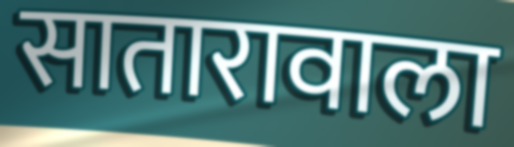
सातारावाला